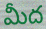
మీద